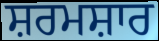
ਸ਼ਰਮਸ਼ਾਰ